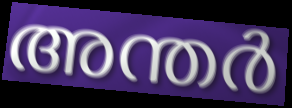
അന്തർ